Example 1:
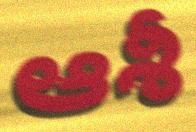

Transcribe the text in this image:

ఆశీ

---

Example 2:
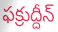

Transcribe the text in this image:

ఫక్రుద్దీన్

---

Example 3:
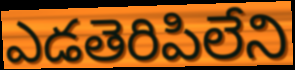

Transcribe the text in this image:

ఎడతెరిపిలేని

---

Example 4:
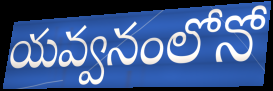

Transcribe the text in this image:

యవ్వనంలోనో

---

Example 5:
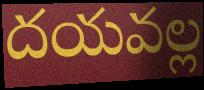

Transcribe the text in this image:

దయవల్ల